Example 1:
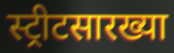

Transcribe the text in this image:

स्ट्रीटसारख्या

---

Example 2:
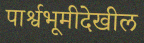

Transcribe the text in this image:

पार्श्वभूमीदेखील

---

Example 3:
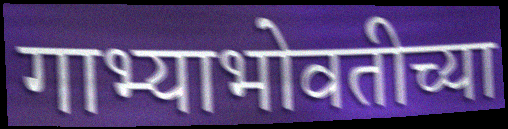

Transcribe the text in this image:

गाभ्याभोवतीच्या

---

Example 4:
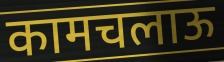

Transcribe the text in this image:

कामचलाऊ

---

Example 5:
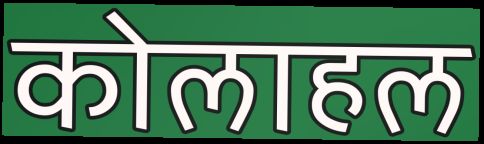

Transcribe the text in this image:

कोलाहल